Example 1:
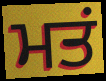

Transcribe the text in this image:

ਮਤਂ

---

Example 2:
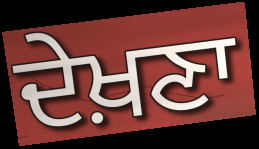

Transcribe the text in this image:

ਦੇਖ਼ਣਾ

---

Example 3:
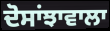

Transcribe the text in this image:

ਦੋਸਾਂਝਾਵਾਲਾ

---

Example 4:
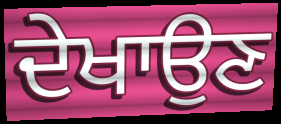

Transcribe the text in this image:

ਦੇਖਾਉਣ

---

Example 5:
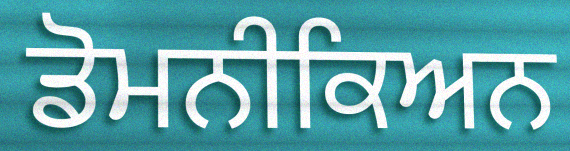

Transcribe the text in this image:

ਡੋਮਨੀਕਿਅਨ